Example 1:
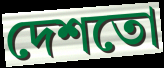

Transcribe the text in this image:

দেশতো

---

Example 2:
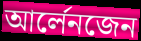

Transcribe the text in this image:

আৰ্লেনজেন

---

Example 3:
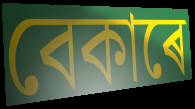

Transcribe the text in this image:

বেকাৰে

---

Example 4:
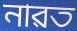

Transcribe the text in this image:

নাৱত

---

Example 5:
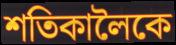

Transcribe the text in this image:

শতিকালৈকে